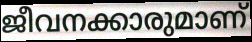
ജീവനക്കാരുമാണ്